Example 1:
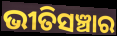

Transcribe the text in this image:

ଭୀତିସଞ୍ଚାର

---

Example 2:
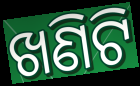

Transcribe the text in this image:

ଖଣିଟି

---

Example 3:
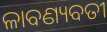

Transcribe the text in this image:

ଳାବଣ୍ୟବତୀ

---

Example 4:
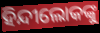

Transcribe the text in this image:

ହିନ୍ଦୀଲୋକଙ୍କୁ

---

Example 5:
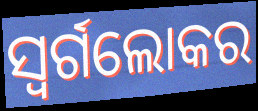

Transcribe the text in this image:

ସ୍ୱର୍ଗଲୋକର